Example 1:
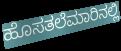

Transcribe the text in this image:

ಹೊಸತಲೆಮಾರಿನಲ್ಲಿ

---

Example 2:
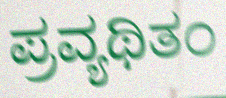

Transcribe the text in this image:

ಪ್ರವ್ಯಥಿತಂ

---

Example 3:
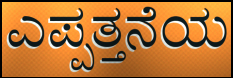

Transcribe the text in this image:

ಎಪ್ಪತ್ತನೆಯ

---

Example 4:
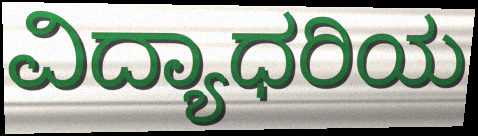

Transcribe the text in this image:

ವಿದ್ಯಾಧರಿಯ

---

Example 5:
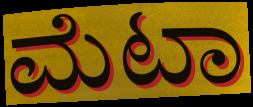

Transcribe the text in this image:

ಮೆಟಾ